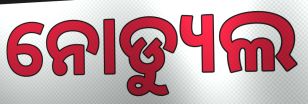
ନୋଡ୍ୟୁଲ